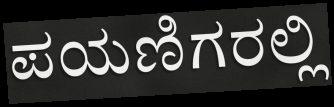
ಪಯಣಿಗರಲ್ಲಿ